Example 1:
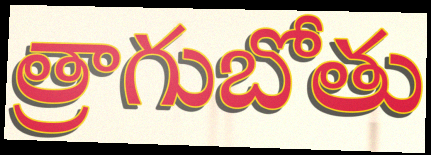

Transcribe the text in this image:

త్రాగుబోతు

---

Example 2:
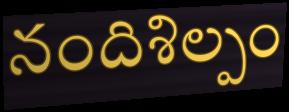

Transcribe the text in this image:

నందిశిల్పం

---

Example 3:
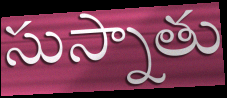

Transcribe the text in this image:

సుస్నాతు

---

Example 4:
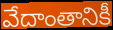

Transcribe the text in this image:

వేదాంతానికీ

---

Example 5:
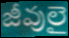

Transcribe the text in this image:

జీవులై